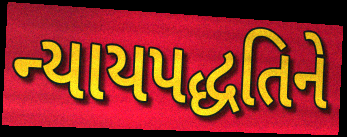
ન્યાયપદ્ધતિને